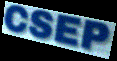
CSEP